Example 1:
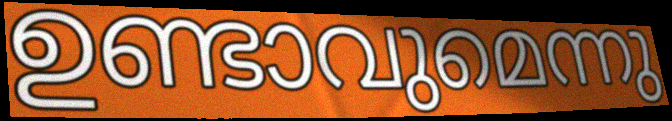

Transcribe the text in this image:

ഉണ്ടാവുമെന്നു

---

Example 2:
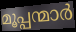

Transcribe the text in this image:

മൂപ്പന്മാർ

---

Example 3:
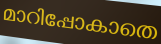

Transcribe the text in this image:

മാറിപ്പോകാതെ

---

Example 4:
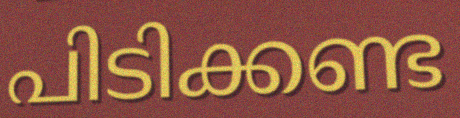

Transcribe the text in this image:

പിടിക്കണ്ട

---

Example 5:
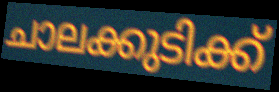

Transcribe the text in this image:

ചാലക്കുടിക്ക്